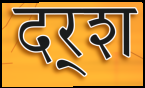
दर्श